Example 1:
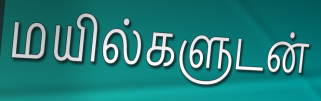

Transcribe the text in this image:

மயில்களுடன்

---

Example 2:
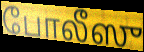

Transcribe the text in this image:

போலீஸு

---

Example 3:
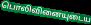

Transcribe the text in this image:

பொலிவினையுடைய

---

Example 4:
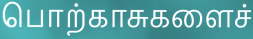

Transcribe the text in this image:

பொற்காசுகளைச்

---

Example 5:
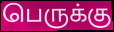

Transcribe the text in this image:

பெருக்கு